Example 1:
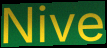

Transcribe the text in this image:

Nive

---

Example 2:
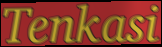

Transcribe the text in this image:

Tenkasi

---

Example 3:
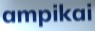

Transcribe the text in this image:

ampikai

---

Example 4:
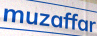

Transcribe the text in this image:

muzaffar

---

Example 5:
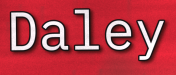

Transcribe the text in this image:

Daley